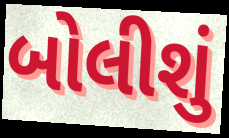
બોલીશું